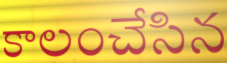
కాలంచేసిన